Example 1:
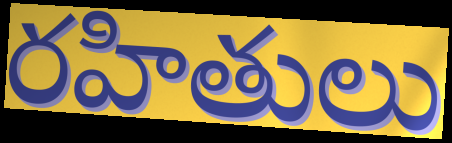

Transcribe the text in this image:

రహితులు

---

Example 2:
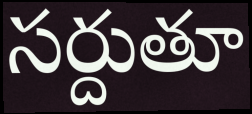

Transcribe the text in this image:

సర్దుతూ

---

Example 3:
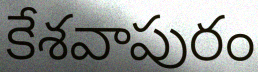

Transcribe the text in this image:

కేశవాపురం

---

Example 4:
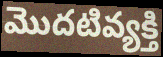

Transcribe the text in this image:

మొదటివ్యక్తి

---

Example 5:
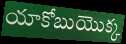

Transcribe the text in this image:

యాకోబుయొక్క